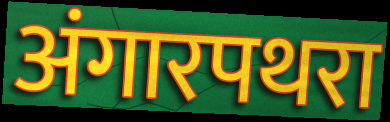
अंगारपथरा